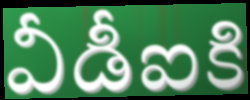
వీడీఐకి